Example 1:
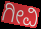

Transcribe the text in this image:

ಗೀವಿ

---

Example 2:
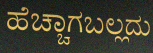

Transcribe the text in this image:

ಹೆಚ್ಚಾಗಬಲ್ಲದು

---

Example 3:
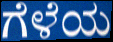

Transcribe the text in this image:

ಗೆಳೆಯ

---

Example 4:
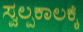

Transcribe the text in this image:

ಸ್ವಲ್ಪಕಾಲಕ್ಕೆ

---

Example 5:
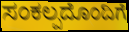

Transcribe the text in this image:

ಸಂಕಲ್ಪದೊಂದಿಗೆ